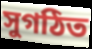
সুগঠিত